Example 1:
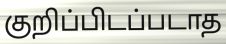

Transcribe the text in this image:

குறிப்பிடப்படாத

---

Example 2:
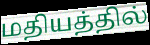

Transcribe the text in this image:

மதியத்தில்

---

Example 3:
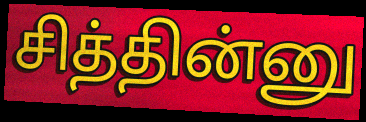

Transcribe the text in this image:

சித்தின்னு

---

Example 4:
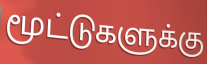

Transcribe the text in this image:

மூட்டுகளுக்கு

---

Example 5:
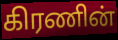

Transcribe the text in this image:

கிரணின்